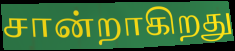
சான்றாகிறது